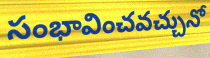
సంభావించవచ్చునో